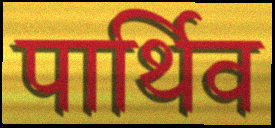
पार्थिव